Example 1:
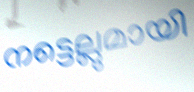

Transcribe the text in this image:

നട്ടെല്ലുമായി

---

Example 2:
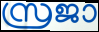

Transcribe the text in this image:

സ്രജാ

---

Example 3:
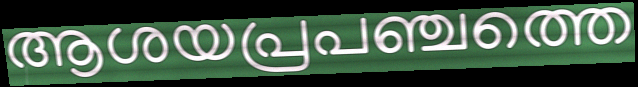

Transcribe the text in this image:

ആശയപ്രപഞ്ചത്തെ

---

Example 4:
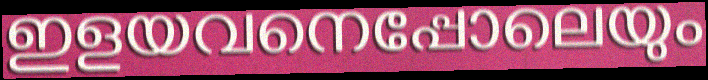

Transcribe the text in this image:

ഇളയവനെപ്പോലെയും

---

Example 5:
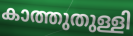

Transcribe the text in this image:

കാത്തുതുള്ളി